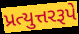
પ્રત્યુત્તરરૂપે